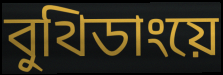
বুথিডাংয়ে